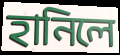
হানিলে